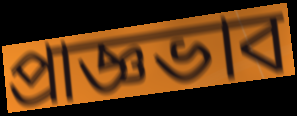
প্রাজ্ঞভাব